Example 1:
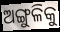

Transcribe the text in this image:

ଅଙ୍ଗୁଳିକୁ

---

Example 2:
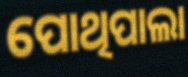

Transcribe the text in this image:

ପୋଥିପାଲା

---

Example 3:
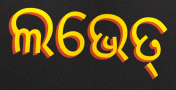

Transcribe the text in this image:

ଲଭେତ୍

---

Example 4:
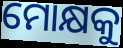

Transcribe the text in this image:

ମୋକ୍ଷକୁ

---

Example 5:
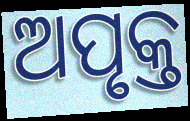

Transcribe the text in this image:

ଅପୃକ୍ତ